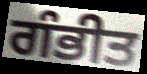
ਗੰਭੀਤ